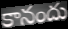
కానందు